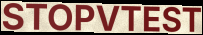
STOPVTEST